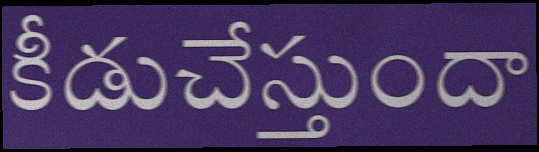
కీడుచేస్తుందా